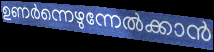
ഉണർന്നെഴുന്നേൽക്കാൻ